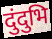
दुंदुभि